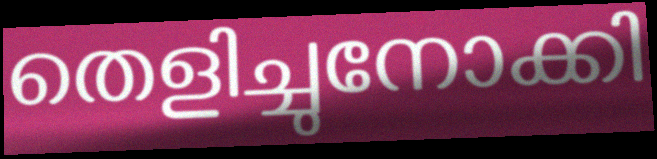
തെളിച്ചുനോക്കി